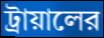
ট্রায়ালের